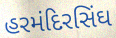
હરમંદિરસિંઘ